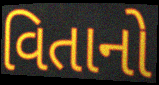
વિતાનો